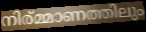
നിര്മ്മാണത്തിലും